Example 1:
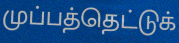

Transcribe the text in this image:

முப்பத்தெட்டுக்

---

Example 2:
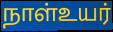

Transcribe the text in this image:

நாள்உயர்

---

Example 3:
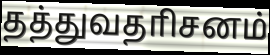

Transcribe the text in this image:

தத்துவதரிசனம்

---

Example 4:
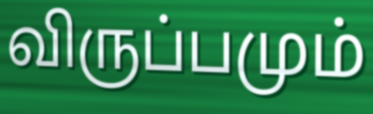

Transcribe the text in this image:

விருப்பமும்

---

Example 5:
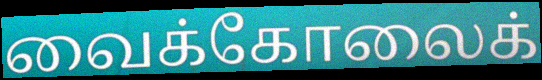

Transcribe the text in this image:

வைக்கோலைக்